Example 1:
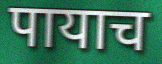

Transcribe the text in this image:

पायाच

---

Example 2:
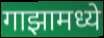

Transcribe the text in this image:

गाझामध्ये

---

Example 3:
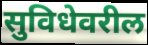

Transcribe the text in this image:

सुविधेवरील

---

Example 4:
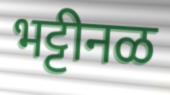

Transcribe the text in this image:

भट्टीनळ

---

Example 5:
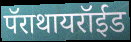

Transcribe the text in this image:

पॅराथायरॉईड